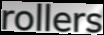
rollers